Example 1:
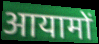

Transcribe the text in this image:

आयामों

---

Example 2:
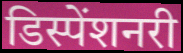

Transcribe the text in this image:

डिस्पेंशनरी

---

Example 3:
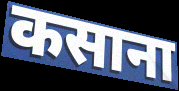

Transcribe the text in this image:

कसाना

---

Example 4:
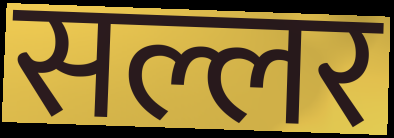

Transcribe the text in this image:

सल्लर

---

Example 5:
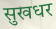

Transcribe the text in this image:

सुखधर